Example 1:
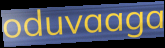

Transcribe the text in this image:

oduvaaga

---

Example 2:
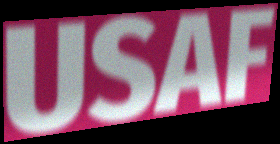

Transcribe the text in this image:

USAF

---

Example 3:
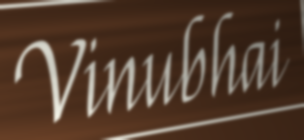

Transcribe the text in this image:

Vinubhai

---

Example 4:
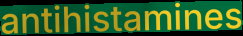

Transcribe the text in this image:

antihistamines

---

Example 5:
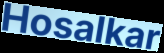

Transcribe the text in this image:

Hosalkar